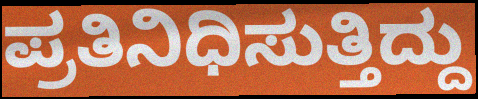
ಪ್ರತಿನಿಧಿಸುತ್ತಿದ್ದು